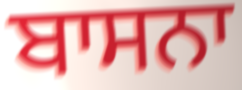
ਬਾਸਨਾ